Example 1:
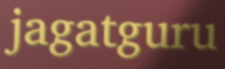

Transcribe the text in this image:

jagatguru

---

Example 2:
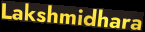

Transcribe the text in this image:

Lakshmidhara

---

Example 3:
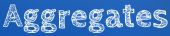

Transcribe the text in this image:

Aggregates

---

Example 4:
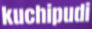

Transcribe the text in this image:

kuchipudi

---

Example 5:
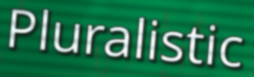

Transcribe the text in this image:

Pluralistic